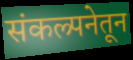
संकल्पनेतून